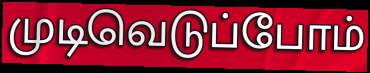
முடிவெடுப்போம்